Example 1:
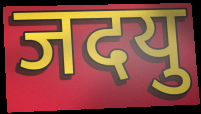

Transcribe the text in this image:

जदयु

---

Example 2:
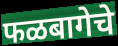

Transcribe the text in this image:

फळबागेचे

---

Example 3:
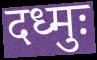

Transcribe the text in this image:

दध्मुः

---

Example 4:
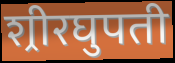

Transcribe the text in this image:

श्रीरघुपती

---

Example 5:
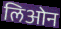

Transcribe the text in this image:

लिओन